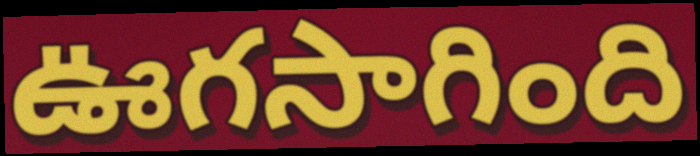
ఊగసాగింది